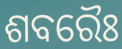
ଶବରୈଃ